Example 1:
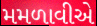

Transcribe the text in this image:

મમળાવીએ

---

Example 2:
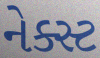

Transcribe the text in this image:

નેક્સ્ટ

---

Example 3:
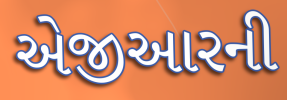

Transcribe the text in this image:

એજીઆરની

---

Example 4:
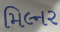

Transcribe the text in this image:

મિલ્નર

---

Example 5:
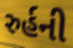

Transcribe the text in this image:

રુર્હની